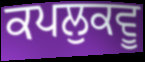
ਕਪਲੁਕਵੂ